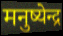
मनुष्येन्द्र